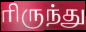
ரிருந்து